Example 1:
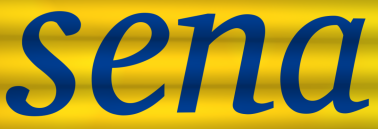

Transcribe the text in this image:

sena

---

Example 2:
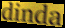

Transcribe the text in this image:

dinda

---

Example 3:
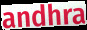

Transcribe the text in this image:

andhra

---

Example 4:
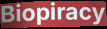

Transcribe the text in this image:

Biopiracy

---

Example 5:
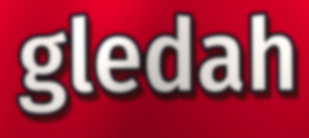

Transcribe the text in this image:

gledah